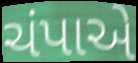
ચંપાએ